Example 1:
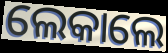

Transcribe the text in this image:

ଲେକାଲେ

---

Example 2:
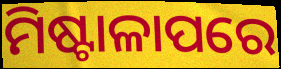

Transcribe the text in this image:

ମିଷ୍ଟାଳାପରେ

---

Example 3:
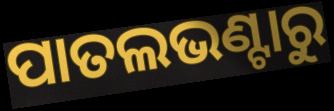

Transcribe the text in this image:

ପାତଲଭଣ୍ଟାରୁ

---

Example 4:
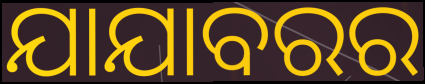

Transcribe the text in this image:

ଯାଯାବରର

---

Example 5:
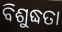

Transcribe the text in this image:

ବିଶୁଦ୍ଧତା